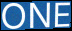
ONE